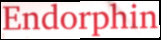
Endorphin